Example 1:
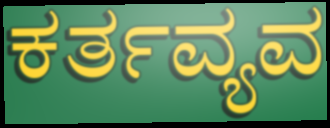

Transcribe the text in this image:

ಕರ್ತವ್ಯವ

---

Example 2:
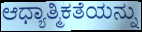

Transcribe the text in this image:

ಆಧ್ಯಾತ್ಮಿಕತೆಯನ್ನು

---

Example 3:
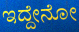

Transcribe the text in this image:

ಇದ್ದೇನೋ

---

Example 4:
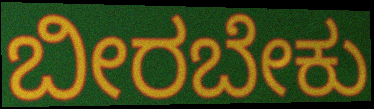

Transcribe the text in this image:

ಬೀರಬೇಕು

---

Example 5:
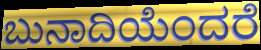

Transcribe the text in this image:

ಬುನಾದಿಯೆಂದರೆ